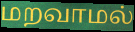
மறவாமல்